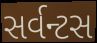
સર્વન્ટસ